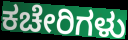
ಕಚೇರಿಗಳು